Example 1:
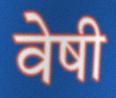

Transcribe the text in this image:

वेषी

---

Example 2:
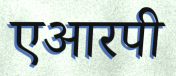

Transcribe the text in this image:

एआरपी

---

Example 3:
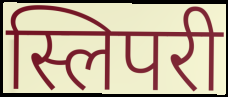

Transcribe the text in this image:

स्लिपरी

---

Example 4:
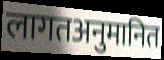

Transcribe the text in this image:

लागतअनुमानित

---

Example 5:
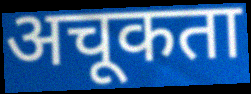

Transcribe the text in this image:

अचूकता